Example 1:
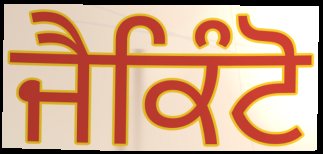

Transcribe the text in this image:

ਜੈਕਿੰਟੋ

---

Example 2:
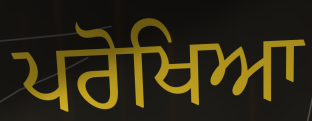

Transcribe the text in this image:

ਪਰੋਖਿਆ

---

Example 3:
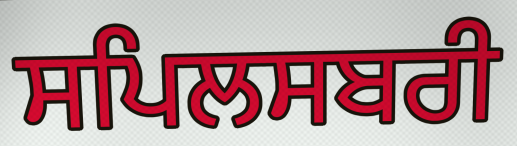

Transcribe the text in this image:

ਸਪਿਲਸਬਰੀ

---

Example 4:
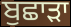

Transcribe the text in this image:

ਬੁਛਾੜਾ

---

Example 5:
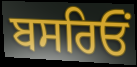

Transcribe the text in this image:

ਬਸਰਿਓਂ